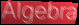
Algebra